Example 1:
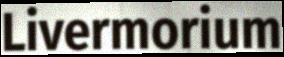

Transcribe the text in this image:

Livermorium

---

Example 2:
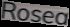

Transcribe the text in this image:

Rosea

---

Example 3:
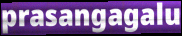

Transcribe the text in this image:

prasangagalu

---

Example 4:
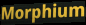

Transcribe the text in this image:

Morphium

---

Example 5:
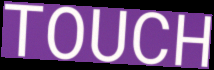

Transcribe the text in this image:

TOUCH